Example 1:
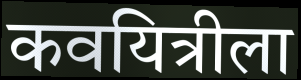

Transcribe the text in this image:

कवयित्रीला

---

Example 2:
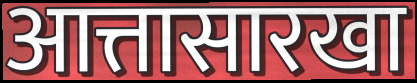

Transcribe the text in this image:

आत्तासारखा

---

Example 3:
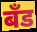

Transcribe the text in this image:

बॅंड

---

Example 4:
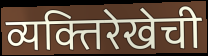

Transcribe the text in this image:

व्यक्तिरेखेची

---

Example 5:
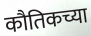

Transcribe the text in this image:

कौतिकच्या